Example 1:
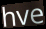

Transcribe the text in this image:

hve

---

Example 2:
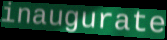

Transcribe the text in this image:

inaugurate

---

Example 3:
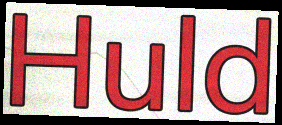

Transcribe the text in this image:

Huld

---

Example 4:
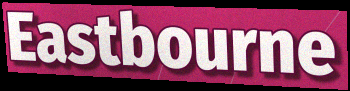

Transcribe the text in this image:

Eastbourne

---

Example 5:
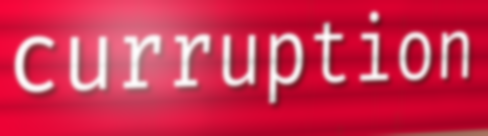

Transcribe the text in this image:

curruption